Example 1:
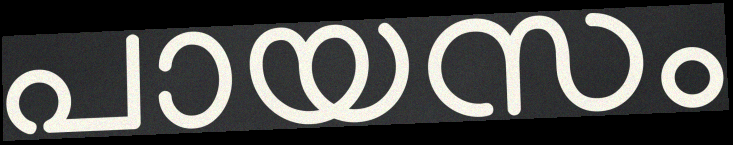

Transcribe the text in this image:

പായസം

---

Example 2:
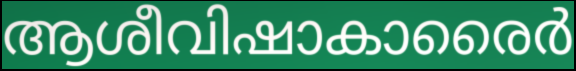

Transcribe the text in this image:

ആശീവിഷാകാരൈർ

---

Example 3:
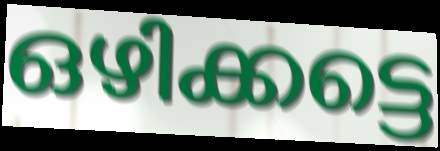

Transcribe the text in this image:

ഒഴിക്കട്ടെ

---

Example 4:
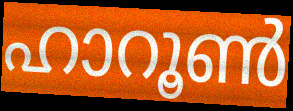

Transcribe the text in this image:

ഹാറൂൺ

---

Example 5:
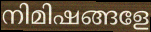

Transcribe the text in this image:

നിമിഷങ്ങളേ